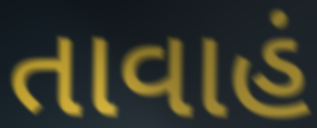
તાવાહં